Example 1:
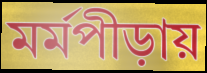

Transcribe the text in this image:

মর্মপীড়ায়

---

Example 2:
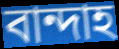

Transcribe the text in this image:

বান্দাহ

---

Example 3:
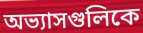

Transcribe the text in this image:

অভ্যাসগুলিকে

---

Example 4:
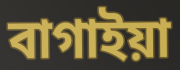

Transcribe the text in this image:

বাগাইয়া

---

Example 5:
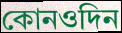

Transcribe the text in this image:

কোনওদিন